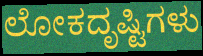
ಲೋಕದೃಷ್ಟಿಗಳು